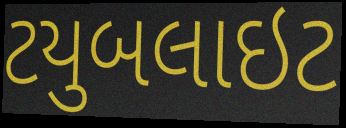
ટયુબલાઇટ